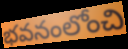
భవనంలోంచి